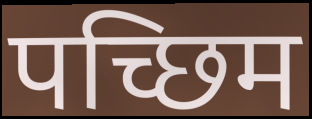
पच्छिम